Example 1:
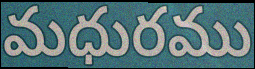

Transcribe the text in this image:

మధురము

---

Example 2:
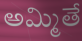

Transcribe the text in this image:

అమ్మితే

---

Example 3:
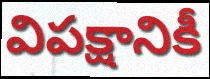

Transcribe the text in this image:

విపక్షానికీ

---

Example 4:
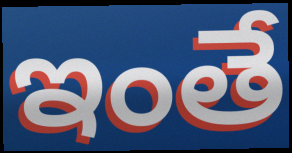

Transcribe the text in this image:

ఇంతే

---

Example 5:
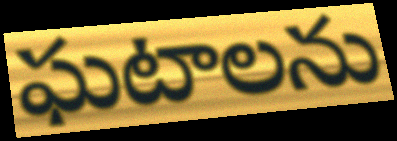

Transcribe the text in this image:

ఘటాలను